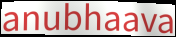
anubhaava